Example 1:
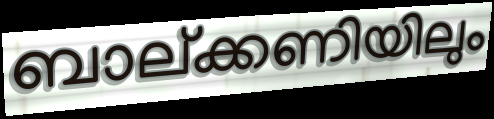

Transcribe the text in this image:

ബാല്ക്കണിയിലും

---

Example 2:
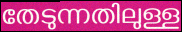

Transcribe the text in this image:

തേടുന്നതിലുള്ള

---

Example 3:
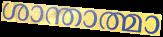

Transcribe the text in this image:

ശാന്താത്മാ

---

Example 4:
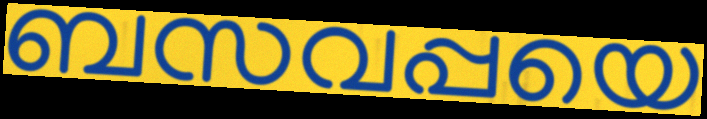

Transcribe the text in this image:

ബസവപ്പയെ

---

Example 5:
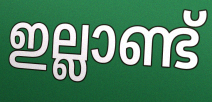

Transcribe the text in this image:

ഇല്ലാണ്ട്